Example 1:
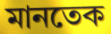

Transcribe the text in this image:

মানতেক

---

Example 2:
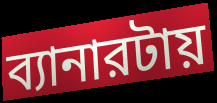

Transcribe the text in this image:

ব্যানারটায়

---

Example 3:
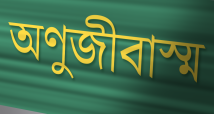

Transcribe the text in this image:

অণুজীবাস্ম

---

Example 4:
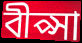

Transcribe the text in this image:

বীপ্সা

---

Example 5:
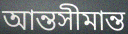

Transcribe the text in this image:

আন্তসীমান্ত